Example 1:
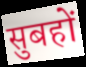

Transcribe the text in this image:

सुबहों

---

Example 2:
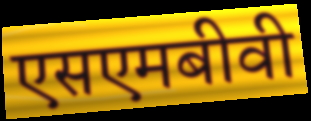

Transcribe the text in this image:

एसएमबीवी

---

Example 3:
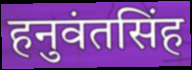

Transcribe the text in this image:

हनुवंतसिंह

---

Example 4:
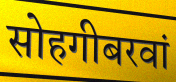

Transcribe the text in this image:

सोहगीबरवां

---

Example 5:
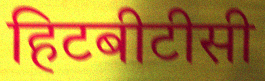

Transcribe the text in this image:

हिटबीटीसी